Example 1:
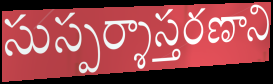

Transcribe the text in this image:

సుస్పర్శాస్తరణాని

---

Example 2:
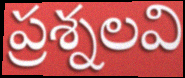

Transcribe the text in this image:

ప్రశ్నలవి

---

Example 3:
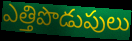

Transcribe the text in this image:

ఎత్తిపొడుపులు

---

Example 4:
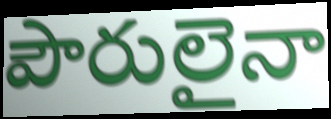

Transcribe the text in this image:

పౌరులైనా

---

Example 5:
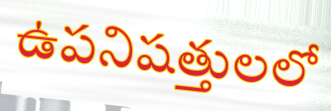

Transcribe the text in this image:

ఉపనిషత్తులలో